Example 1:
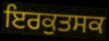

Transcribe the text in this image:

ਇਰਕੁਤਸਕ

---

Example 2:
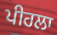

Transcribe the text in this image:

ਪੀਹਲਾ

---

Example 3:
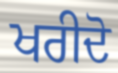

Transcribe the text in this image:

ਖਰੀਦੋ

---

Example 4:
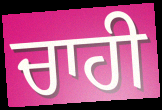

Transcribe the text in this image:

ਚਾਹੀ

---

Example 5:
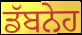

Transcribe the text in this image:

ਡੱਬਨੇਹ